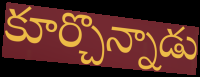
కూర్చొన్నాడు